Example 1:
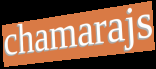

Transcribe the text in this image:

chamarajs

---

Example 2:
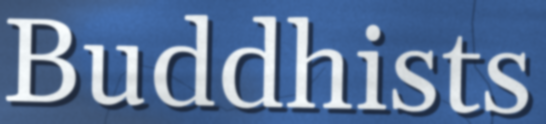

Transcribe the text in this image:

Buddhists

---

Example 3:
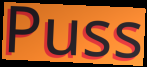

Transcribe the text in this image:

Puss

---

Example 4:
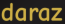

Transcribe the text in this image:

daraz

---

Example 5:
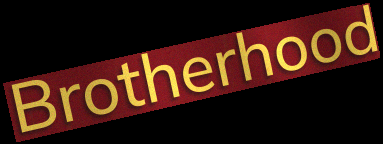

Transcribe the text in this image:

Brotherhood